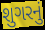
શુગરનું